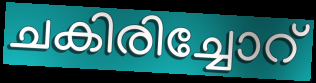
ചകിരിച്ചോറ്